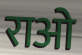
राओ